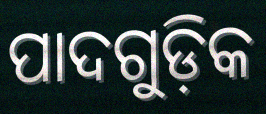
ପାଦଗୁଡ଼ିକ